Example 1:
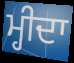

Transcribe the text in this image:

ਮ੍ਹੀਦਾ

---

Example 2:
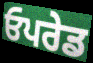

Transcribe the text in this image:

ਓਪਰੇਡ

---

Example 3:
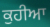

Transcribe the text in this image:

ਕੁਹੀਆ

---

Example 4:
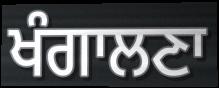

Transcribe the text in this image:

ਖੰਗਾਲਣਾ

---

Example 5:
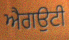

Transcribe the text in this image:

ਐਗਉਟੀ